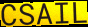
CSAIL